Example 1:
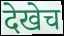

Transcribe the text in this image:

देखेच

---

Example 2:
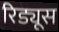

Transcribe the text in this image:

रिड्यूस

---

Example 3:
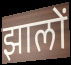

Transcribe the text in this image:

झालों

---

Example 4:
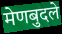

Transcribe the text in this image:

मेणबुदले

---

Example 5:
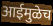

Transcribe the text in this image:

आईमुळेच